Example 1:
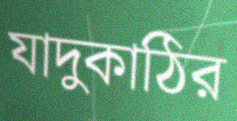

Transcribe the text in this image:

যাদুকাঠির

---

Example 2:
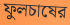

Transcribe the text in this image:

ফুলচাষের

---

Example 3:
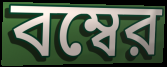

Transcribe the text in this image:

বম্বের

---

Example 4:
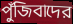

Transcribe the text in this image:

পুঁজিবাদের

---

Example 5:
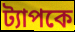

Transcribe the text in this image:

ট্যাপকে